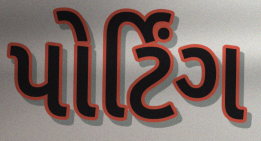
પોર્ટિંગ